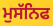
ਮੁਸੱਨਿਫ